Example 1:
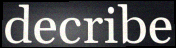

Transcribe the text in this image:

decribe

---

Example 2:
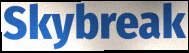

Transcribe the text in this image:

Skybreak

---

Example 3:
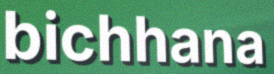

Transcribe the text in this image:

bichhana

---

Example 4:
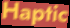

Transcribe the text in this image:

Haptic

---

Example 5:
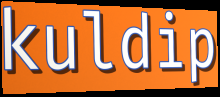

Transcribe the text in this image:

kuldip